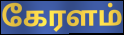
கேரளம்